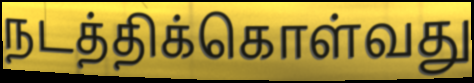
நடத்திக்கொள்வது